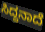
ಸಿದ್ದನಾದೆ